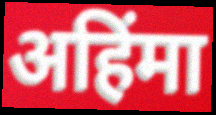
अहिंमा